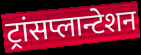
ट्रांसप्लान्टेशन